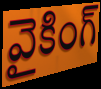
వైకింగ్